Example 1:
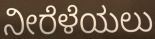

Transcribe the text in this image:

ನೀರೆಳೆಯಲು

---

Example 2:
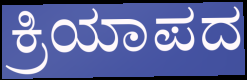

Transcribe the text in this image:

ಕ್ರಿಯಾಪದ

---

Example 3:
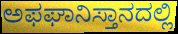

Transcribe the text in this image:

ಅಫಘಾನಿಸ್ತಾನದಲ್ಲಿ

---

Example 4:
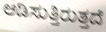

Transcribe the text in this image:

ಆಡಿಸುತ್ತಿರುತ್ತದೆ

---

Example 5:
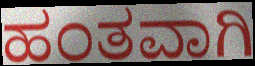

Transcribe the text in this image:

ಹಂತವಾಗಿ